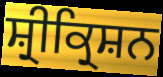
ਸ਼੍ਰੀਕ੍ਰਿਸ਼ਨ